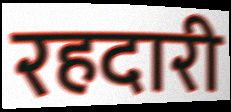
रहदारी